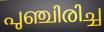
പുഞ്ചിരിച്ച